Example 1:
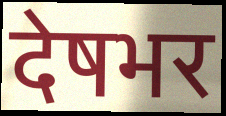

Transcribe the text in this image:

देषभर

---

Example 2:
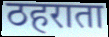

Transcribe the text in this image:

ठहराता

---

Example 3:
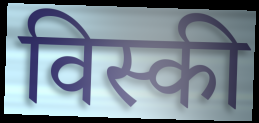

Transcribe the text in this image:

विस्की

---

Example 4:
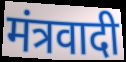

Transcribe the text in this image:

मंत्रवादी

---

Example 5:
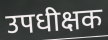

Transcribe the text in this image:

उपधीक्षक